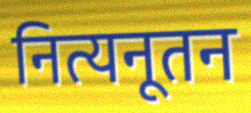
नित्यनूतन